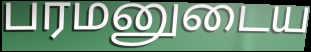
பரமனுடைய